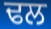
ਢਲ